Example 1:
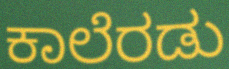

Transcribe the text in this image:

ಕಾಲೆರಡು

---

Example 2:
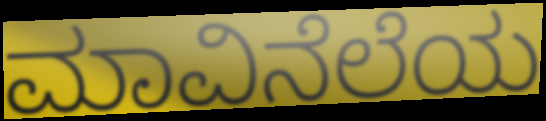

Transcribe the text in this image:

ಮಾವಿನೆಲೆಯ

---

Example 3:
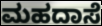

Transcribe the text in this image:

ಮಹದಾಸೆ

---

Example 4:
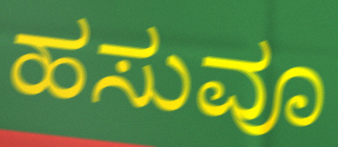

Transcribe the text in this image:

ಹಸುವೂ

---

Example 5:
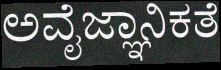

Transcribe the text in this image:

ಅವೈಜ್ಞಾನಿಕತೆ